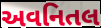
અવનિતલ